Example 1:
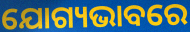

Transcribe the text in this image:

ଯୋଗ୍ୟଭାବରେ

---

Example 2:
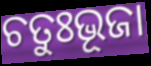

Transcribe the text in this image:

ଚତୁଃଭୂଜା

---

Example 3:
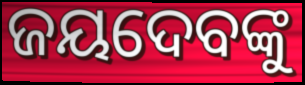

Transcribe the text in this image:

ଜୟଦେବଙ୍କୁ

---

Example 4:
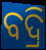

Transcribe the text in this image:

ବଦ୍ରି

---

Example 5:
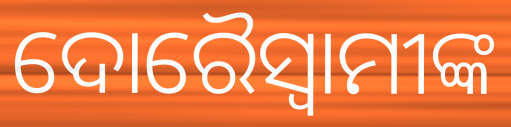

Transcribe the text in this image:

ଦୋରୈସ୍ବାମୀଙ୍କ